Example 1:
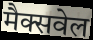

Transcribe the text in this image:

मैक्सवेल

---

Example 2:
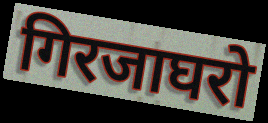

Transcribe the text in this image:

गिरजाघरो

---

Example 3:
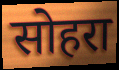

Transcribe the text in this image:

सोहरा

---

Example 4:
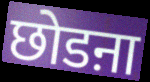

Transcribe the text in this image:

छोडऩा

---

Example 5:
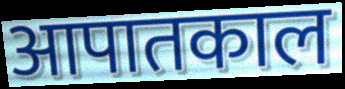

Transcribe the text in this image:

आपातकाल